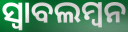
ସ୍ୱାବଲମ୍ବନ